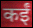
कईं